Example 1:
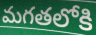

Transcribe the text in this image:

మగతలోకి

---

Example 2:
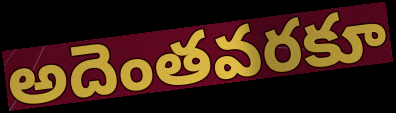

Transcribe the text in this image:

అదెంతవరకూ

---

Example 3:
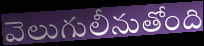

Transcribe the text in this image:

వెలుగులీనుతోంది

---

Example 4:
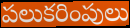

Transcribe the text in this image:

పలుకరింపులు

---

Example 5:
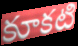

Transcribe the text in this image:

కూకటి